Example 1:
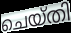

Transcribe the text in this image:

ചെയ്തി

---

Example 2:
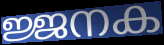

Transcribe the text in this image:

ജ്ജനക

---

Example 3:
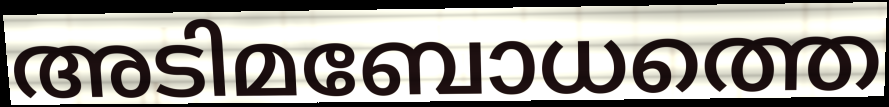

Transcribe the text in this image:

അടിമബോധത്തെ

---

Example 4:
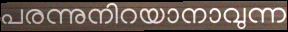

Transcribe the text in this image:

പരന്നുനിറയാനാവുന്ന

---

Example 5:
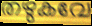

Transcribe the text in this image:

തഴുകവേ